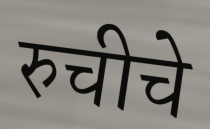
रुचीचे